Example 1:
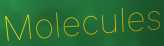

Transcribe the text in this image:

Molecules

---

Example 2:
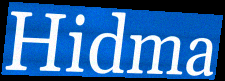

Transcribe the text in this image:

Hidma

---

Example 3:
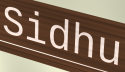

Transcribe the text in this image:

Sidhu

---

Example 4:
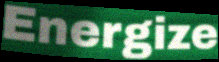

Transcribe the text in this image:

Energize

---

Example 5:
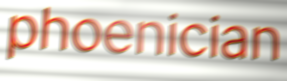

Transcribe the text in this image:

phoenician